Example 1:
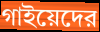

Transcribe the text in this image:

গাইয়েদের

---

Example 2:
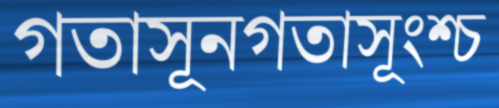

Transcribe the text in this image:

গতাসূনগতাসূংশ্চ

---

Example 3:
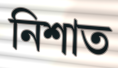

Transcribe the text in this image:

নিশাত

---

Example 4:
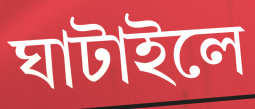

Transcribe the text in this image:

ঘাটাইলে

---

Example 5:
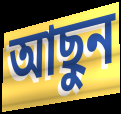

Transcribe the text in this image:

আছুন